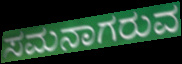
ಸಮನಾಗರುವ